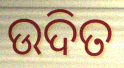
ଉଦିତ